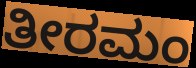
ತೀರಮಂ